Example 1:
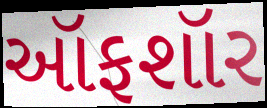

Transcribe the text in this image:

ઑફશૉર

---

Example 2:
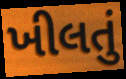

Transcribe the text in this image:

ખીલતું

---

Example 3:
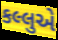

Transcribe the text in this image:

કલ્લુએ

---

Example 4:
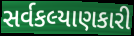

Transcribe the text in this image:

સર્વકલ્યાણકારી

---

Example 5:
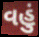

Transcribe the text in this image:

વહું